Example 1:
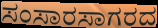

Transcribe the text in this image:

ಸಂಸಾರಸಾಗರದ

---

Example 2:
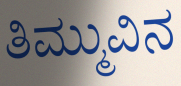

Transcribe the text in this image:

ತಿಮ್ಮುವಿನ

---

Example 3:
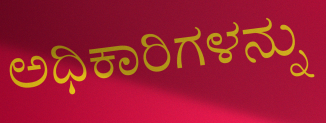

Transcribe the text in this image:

ಅಧಿಕಾರಿಗಳನ್ನು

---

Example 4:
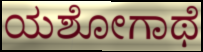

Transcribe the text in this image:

ಯಶೋಗಾಥೆ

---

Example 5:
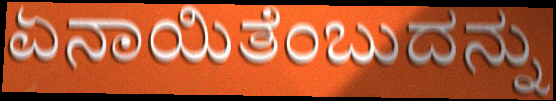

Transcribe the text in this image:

ಏನಾಯಿತೆಂಬುದನ್ನು